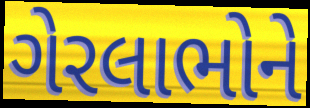
ગેરલાભોને